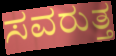
ಸವರುತ್ತ